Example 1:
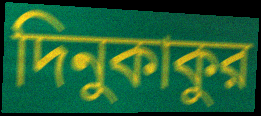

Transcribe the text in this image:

দিনুকাকুর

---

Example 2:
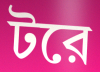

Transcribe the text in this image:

টরে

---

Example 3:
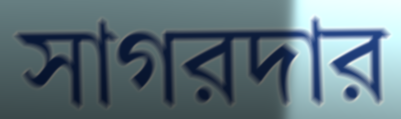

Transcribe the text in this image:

সাগরদার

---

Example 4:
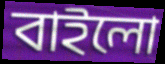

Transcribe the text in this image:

বাইলো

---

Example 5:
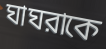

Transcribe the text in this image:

ঘাঘরাকে